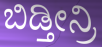
ಬಿಡ್ತೀನ್ರಿ